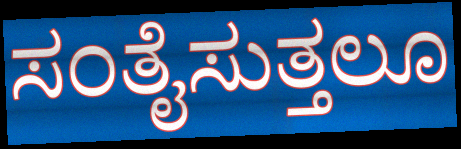
ಸಂತೈಸುತ್ತಲೂ